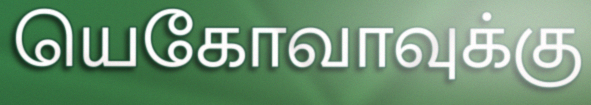
யெகோவாவுக்கு